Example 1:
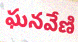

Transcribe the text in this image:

ఘనవేణి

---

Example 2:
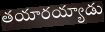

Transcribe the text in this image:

తయారయ్యాడు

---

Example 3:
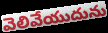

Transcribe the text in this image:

వెలివేయుదును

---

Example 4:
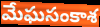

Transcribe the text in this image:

మేఘసంకాశ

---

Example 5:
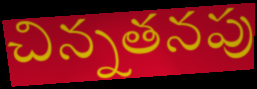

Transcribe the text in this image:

చిన్నతనపు